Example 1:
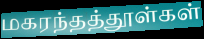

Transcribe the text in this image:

மகரந்தத்தூள்கள்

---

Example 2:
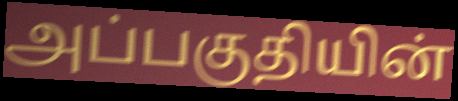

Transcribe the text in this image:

அப்பகுதியின்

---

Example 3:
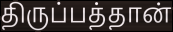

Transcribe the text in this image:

திருப்பத்தான்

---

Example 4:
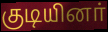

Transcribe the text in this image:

குடியினர்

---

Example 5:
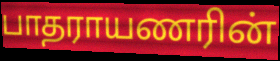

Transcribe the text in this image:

பாதராயணரின்